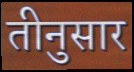
तीनुसार